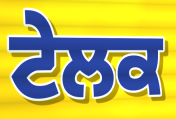
ਟੇਲਕ